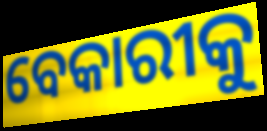
ବେକାରୀକୁ